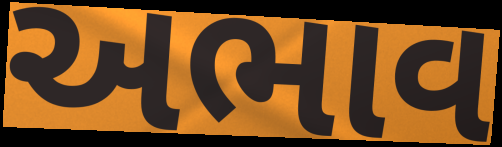
અભાવ